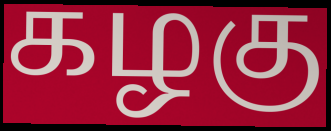
கழகு